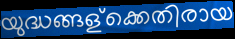
യുദ്ധങ്ങള്ക്കെതിരായ